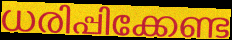
ധരിപ്പിക്കേണ്ട